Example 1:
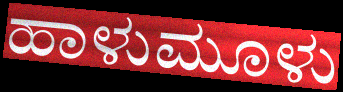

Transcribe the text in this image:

ಹಾಳುಮೂಳು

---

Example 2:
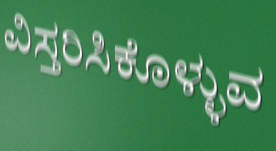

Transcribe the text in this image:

ವಿಸ್ತರಿಸಿಕೊಳ್ಳುವ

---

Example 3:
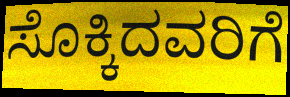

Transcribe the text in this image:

ಸೊಕ್ಕಿದವರಿಗೆ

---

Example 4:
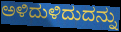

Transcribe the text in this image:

ಅಳಿದುಳಿದುದನ್ನು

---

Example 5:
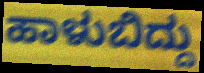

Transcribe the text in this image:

ಹಾಳುಬಿದ್ದು